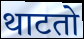
थाटतो